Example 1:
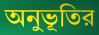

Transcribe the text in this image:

অনুভূতির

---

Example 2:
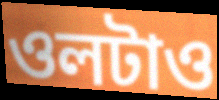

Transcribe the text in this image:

ওলটাও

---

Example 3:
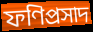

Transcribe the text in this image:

ফণিপ্রসাদ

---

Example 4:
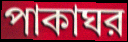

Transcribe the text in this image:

পাকাঘর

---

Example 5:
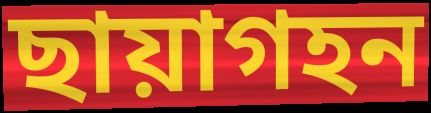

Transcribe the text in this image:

ছায়াগহন